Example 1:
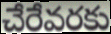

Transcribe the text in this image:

చేరేవరకు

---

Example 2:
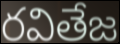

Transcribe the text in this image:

రవితేజ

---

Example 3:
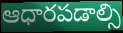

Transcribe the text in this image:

ఆధారపడాల్సి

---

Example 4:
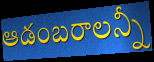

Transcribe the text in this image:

ఆడంబరాలన్నీ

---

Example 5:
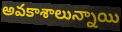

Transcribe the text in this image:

అవకాశాలున్నాయి